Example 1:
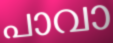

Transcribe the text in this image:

പാവാ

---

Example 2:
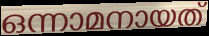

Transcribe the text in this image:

ഒന്നാമനായത്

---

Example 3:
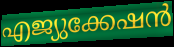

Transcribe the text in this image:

എജ്യുക്കേഷൻ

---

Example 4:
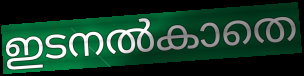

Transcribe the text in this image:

ഇടനൽകാതെ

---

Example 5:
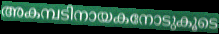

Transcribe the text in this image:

അകമ്പടിനായകനോടുകൂടെ